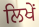
ਲਿਖੇਂ